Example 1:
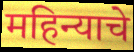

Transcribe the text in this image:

महिन्याचे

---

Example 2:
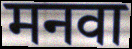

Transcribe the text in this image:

मनवा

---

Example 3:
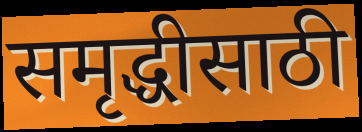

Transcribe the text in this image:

समृद्धीसाठी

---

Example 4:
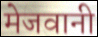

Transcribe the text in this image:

मेजवानी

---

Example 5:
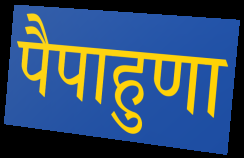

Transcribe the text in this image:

पैपाहुणा